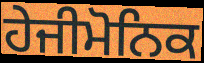
ਹੇਜੀਮੋਨਿਕ